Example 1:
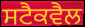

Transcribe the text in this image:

ਸਟੈਕਵੈਲ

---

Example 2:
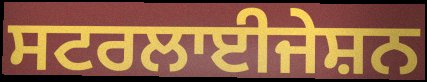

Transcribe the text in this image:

ਸਟਰਲਾਈਜੇਸ਼ਨ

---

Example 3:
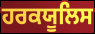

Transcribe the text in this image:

ਹਰਕਯੂਲਿਸ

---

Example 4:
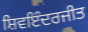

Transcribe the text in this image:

ਸ਼ਿਵਇੰਦਰਜੀਤ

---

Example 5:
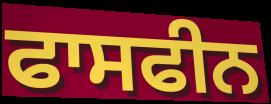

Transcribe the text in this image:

ਫਾਸਫੀਨ